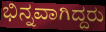
ಭಿನ್ನವಾಗಿದ್ದರು